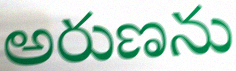
అరుణను